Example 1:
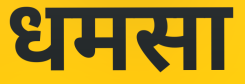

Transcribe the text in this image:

धमसा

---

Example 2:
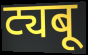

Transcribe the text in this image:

ट्यबू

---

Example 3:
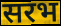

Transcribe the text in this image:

सरभ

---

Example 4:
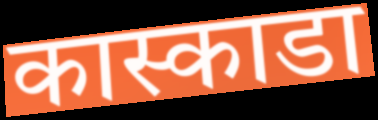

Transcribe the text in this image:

कास्काडा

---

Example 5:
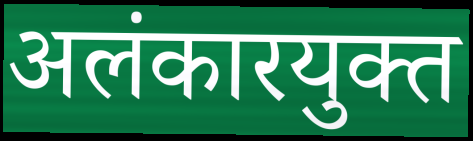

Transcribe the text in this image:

अलंकारयुक्त